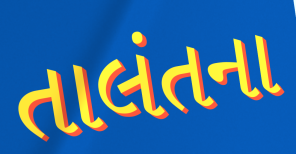
તાલંતના